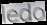
ledo